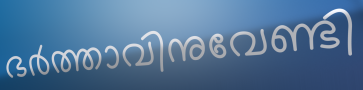
ഭർത്താവിനുവേണ്ടി